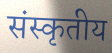
संस्कृतीय